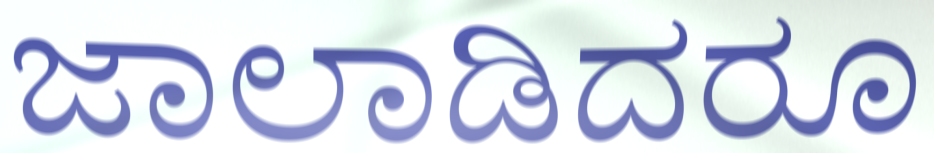
ಜಾಲಾಡಿದರೂ